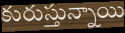
కురుస్తున్నాయి